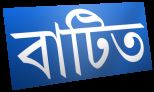
বাটিত